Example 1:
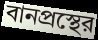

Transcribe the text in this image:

বানপ্রস্থের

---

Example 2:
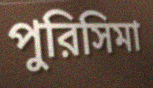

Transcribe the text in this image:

পুরিসিমা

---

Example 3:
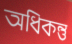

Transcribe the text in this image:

অধিকন্তু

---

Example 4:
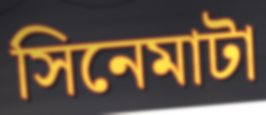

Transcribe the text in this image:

সিনেমাটা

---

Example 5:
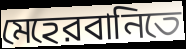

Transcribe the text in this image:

মেহেরবানিতে